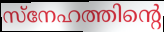
സ്നേഹത്തിന്റെ